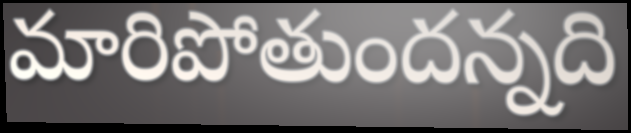
మారిపోతుందన్నది